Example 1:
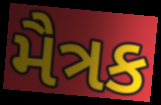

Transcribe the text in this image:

મૈત્રક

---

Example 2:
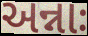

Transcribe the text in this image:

અન્નાઃ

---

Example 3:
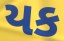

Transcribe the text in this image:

યક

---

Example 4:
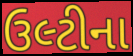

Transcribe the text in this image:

ઉલ્ટીના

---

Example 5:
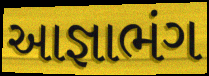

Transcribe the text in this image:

આજ્ઞાભંગ